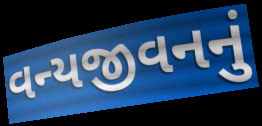
વન્યજીવનનું